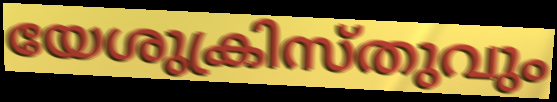
യേശുക്രിസ്തുവും